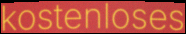
kostenloses